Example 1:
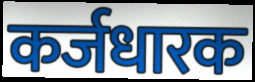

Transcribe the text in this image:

कर्जधारक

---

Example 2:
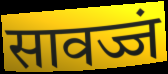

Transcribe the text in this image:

सावज्जं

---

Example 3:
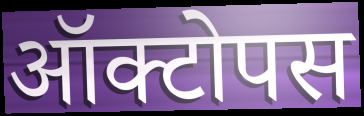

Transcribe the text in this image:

ऑक्टोपस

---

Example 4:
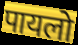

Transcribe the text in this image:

पायलो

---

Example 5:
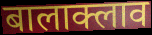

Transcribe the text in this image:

बालाक्लाव